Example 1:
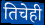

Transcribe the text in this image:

तिचेही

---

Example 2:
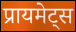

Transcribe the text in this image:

प्रायमेट्स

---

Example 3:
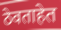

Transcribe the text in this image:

ठेवताहेत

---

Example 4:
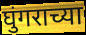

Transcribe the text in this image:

घुंगराच्या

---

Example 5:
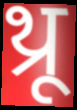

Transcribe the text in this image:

थ्रू